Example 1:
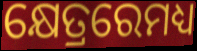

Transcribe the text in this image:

କ୍ଷେତ୍ରରେମଧ୍ୟ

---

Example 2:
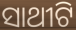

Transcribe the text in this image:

ସାଥୀଟି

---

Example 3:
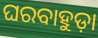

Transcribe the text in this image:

ଘରବାହୁଡ଼ା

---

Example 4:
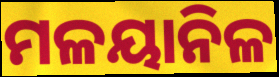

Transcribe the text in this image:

ମଳୟାନିଳ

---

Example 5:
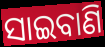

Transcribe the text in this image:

ସାଇବାଣି